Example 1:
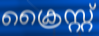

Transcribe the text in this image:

ക്രൈസ്റ്റ്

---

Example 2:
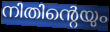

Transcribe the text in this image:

നിതിന്റെയും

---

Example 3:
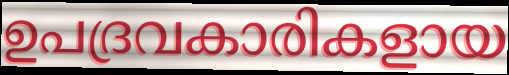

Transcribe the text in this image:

ഉപദ്രവകാരികളായ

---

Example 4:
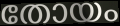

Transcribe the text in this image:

തോയം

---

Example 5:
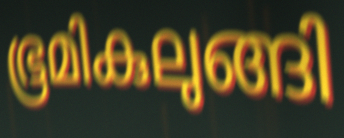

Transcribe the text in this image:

ഭൂമികുലുങ്ങി